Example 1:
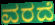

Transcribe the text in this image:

ವರದೆ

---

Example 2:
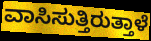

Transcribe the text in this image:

ವಾಸಿಸುತ್ತಿರುತ್ತಾಳೆ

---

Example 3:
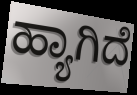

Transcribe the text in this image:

ಹ್ಯಾಗಿದೆ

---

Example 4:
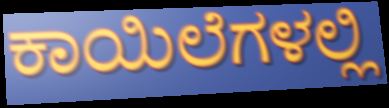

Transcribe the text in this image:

ಕಾಯಿಲೆಗಳಲ್ಲಿ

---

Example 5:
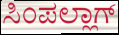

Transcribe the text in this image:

ಸಿಂಪಲ್ಲಾಗ್